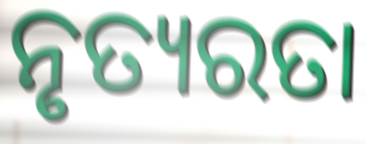
ନୃତ୍ୟରତା